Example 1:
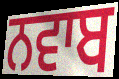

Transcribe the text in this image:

ਨਵਾਬ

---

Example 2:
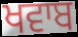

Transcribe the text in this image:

ਖਵਾਬ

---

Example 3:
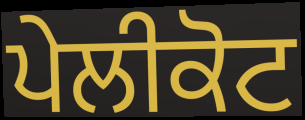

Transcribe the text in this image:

ਪੇਲੀਕੋਟ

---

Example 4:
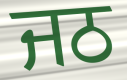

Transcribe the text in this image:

ਜਠ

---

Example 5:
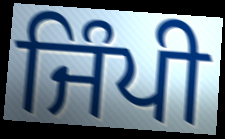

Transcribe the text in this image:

ਜਿੰਪੀ